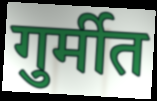
गुर्मीत